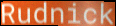
Rudnick